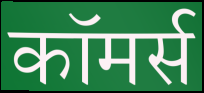
कॉमर्स